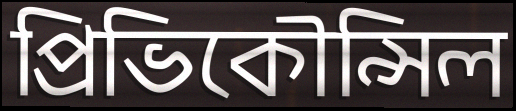
প্রিভিকৌন্সিল